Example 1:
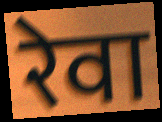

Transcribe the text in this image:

रेवा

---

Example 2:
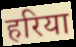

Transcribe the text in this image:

हरिया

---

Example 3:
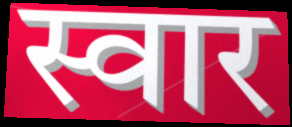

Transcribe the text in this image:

स्वार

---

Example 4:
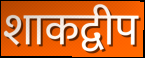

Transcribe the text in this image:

शाकद्वीप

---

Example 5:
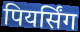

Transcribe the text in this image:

पियर्सिंग